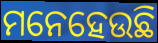
ମନେହେଉଛି